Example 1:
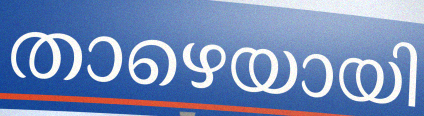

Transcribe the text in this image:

താഴെയായി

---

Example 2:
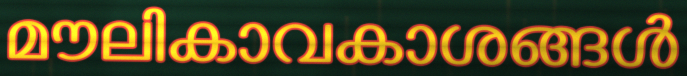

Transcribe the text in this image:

മൗലികാവകാശങ്ങൾ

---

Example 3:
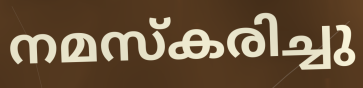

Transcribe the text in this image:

നമസ്കരിച്ചു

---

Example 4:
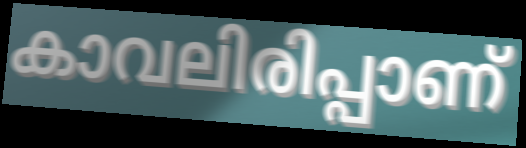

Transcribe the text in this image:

കാവലിരിപ്പാണ്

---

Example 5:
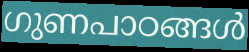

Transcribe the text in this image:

ഗുണപാഠങ്ങൾ